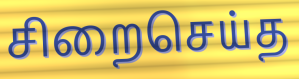
சிறைசெய்த